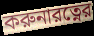
করুনারত্নের